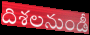
దిశలనుండీ